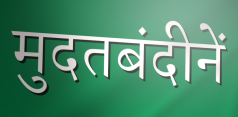
मुदतबंदीनें